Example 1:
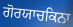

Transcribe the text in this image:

ਗੋਰਯਾਚਕਿਨਾ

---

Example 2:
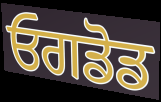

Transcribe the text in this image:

ਓਗਡੋਡ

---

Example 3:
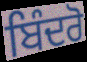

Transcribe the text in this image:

ਬਿੰਦਰੋ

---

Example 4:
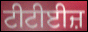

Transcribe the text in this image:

ਟੀਟੀਈਜ਼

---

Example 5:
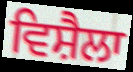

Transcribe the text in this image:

ਵਿਸ਼ੈਲਾ